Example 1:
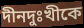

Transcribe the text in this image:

দীনদুঃখীকে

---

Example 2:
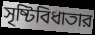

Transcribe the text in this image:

সৃষ্টিবিধাতার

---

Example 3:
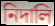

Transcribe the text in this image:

নিদালি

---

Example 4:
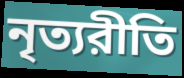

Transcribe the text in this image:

নৃত্যরীতি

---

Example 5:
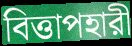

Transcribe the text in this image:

বিত্তাপহারী